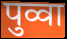
पुव्वा